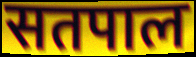
सतपाल